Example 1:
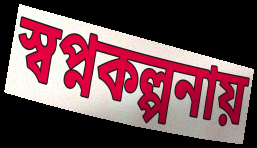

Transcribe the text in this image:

স্বপ্নকল্পনায়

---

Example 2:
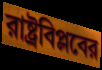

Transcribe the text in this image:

রাষ্ট্রবিপ্লবের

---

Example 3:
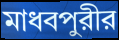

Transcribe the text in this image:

মাধবপুরীর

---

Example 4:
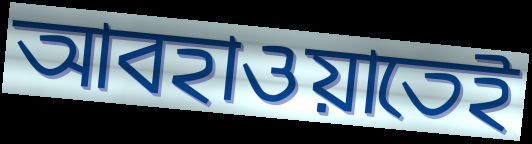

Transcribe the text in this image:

আবহাওয়াতেই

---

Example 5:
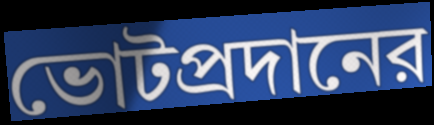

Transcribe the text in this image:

ভোটপ্রদানের